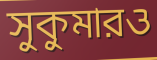
সুকুমারও